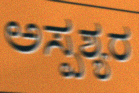
ಅಸ್ಪಶ್ಯರ